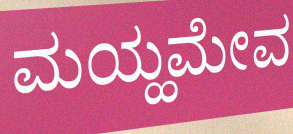
ಮಯ್ಹಮೇವ